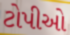
ટોપીઓ